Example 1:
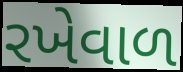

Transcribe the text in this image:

રખેવાળ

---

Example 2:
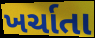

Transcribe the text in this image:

ખર્ચાતા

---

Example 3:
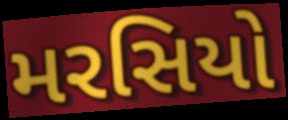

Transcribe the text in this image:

મરસિયો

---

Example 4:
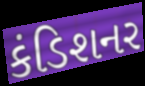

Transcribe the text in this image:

કંડિશનર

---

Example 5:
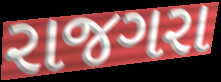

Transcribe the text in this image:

રાજગરા